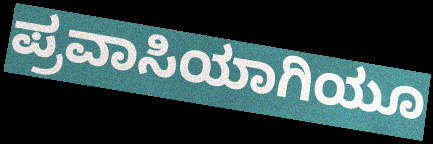
ಪ್ರವಾಸಿಯಾಗಿಯೂ